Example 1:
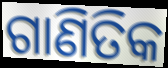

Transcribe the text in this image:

ଗାଣିତିକ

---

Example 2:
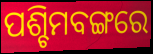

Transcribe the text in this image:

ପଶ୍ଚିମବଙ୍ଗରେ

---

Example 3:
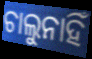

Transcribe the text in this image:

ଚାଲୁନାହିଁ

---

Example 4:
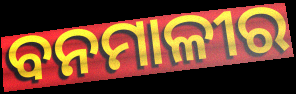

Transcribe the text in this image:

ବନମାଳୀର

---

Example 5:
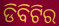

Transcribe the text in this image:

ଡିବିଟିର